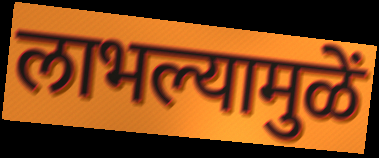
लाभल्यामुळें